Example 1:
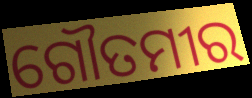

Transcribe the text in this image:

ଗୌତମୀର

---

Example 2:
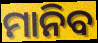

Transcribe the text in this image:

ମାନିବ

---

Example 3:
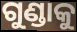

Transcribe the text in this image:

ଗୁଣ୍ଡାକୁ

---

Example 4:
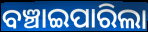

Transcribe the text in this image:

ବଞ୍ଚାଇପାରିଲା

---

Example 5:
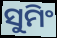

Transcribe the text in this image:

ସୁମିଂ